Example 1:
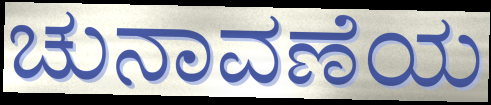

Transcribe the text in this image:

ಚುನಾವಣೆಯ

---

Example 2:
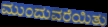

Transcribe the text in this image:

ಮುಂದುವರೆಯಿತು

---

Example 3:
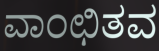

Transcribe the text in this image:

ವಾಂಛಿತವ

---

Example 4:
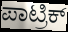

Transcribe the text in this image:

ಪಾಟ್ರಿಕ್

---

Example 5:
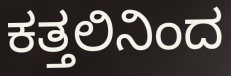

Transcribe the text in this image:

ಕತ್ತಲಿನಿಂದ